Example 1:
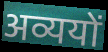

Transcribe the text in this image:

अव्ययों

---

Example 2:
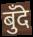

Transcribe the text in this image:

बुँदे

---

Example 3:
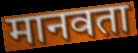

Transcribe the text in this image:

मानवता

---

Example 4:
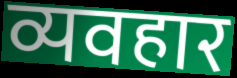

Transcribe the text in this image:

व्यवहार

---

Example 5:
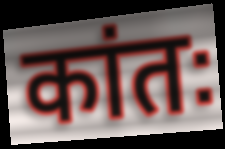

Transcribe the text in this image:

कांतः